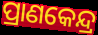
ପ୍ରାଣକେନ୍ଦ୍ର